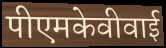
पीएमकेवीवाई